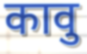
कावु